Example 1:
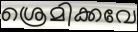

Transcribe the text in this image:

ശ്രെമിക്കവേ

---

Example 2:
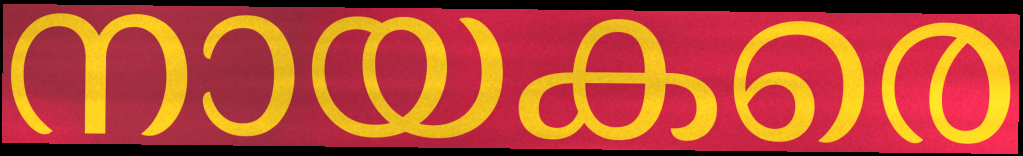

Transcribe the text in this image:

നായകരെ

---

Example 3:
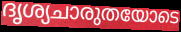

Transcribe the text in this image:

ദൃശ്യചാരുതയോടെ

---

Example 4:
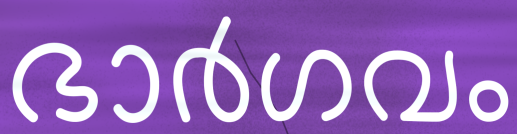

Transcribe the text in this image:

ഭാർഗവം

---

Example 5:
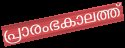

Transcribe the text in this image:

പ്രാരംഭകാലത്ത്